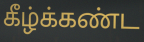
கீழ்க்கண்ட